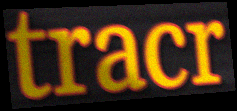
tracr